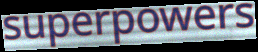
superpowers